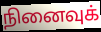
நினைவுக்